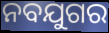
ନବଯୁଗର